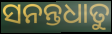
ସନନ୍ତଧାତୁ